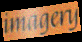
imagery